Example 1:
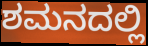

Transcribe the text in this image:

ಶಮನದಲ್ಲಿ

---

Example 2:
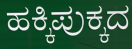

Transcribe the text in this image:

ಹಕ್ಕಿಪುಕ್ಕದ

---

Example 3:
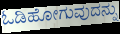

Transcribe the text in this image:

ಓಡಿಹೋಗುವುದನ್ನು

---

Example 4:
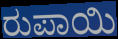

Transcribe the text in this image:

ರುಪಾಯಿ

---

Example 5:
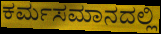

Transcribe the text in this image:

ಕರ್ಮಸಮಾನದಲ್ಲಿ